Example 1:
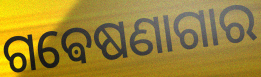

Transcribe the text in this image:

ଗଵେଷଣାଗାର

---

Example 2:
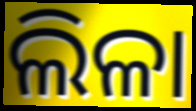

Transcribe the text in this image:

ଲିଳା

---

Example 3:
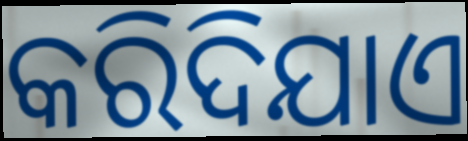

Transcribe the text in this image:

କରିଦିଯାଏ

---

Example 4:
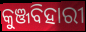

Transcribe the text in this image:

କୁଞ୍ଜବିହାରୀ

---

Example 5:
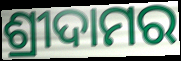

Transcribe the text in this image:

ଶ୍ରୀଦାମର